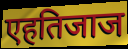
एहतिजाज